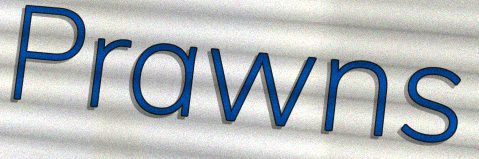
Prawns